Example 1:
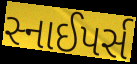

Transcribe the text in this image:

સ્નાઈપર્સ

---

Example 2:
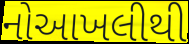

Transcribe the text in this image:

નોઆખલીથી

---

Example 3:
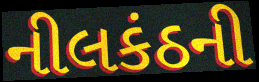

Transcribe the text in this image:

નીલકંઠની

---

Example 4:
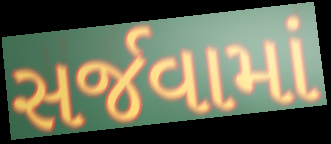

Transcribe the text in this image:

સર્જવામાં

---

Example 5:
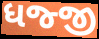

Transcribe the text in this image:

ધજ્જી